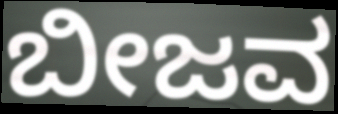
ಬೀಜವ